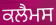
ਕਲੈਮਸ